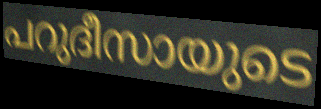
പറുദീസായുടെ